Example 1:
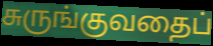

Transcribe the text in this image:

சுருங்குவதைப்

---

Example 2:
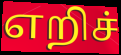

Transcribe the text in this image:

எறிச்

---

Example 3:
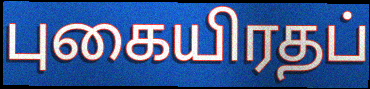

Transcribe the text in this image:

புகையிரதப்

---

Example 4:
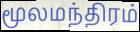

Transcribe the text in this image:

மூலமந்திரம்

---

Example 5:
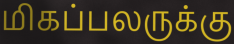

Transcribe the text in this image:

மிகப்பலருக்கு